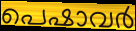
പെഷാവർ